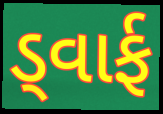
ડ્વાર્ફ